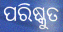
ପରିଷ୍କୁତ